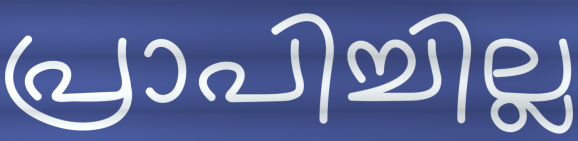
പ്രാപിച്ചില്ല